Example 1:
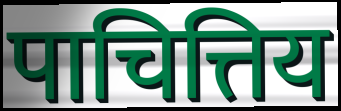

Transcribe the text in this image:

पाचित्तिय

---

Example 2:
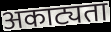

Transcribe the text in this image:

अकाट्यता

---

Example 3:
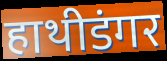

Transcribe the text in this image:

हाथीडंगर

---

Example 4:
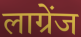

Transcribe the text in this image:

लाग्रेंज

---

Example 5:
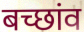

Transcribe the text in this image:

बच्छांव